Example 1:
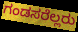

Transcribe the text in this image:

ಗಂಡಸರೆಲ್ಲರು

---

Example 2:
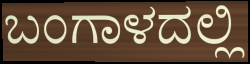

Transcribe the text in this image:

ಬಂಗಾಳದಲ್ಲಿ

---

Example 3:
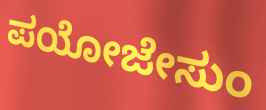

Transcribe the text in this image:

ಪಯೋಜೇಸುಂ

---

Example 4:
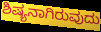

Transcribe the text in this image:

ಶಿಷ್ಯನಾಗಿರುವುದು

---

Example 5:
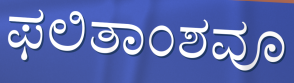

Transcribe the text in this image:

ಫಲಿತಾಂಶವೂ